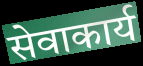
सेवाकार्य